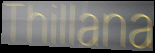
Thillana